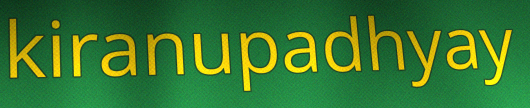
kiranupadhyay